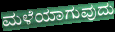
ಮಳೆಯಾಗುವುದು